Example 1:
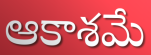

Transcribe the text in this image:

ఆకాశమే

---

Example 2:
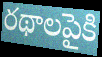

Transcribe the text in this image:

రథాలపైకి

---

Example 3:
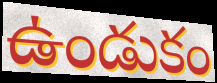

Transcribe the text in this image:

ఉండుకం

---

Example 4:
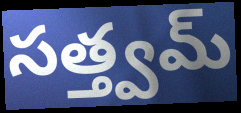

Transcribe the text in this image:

సత్త్వమ్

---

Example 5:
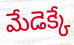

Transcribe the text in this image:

మేడెక్కే